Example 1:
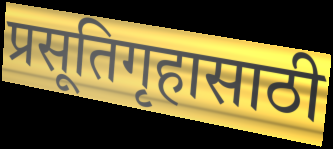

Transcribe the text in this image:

प्रसूतिगृहासाठी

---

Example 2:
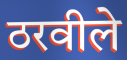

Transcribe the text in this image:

ठरवीले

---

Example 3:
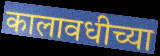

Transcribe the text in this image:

कालावधीच्या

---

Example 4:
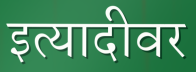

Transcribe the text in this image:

इत्यादीवर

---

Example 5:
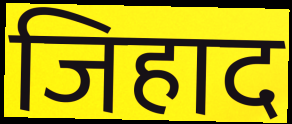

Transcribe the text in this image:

जिहाद